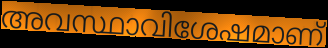
അവസ്ഥാവിശേഷമാണ്